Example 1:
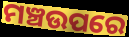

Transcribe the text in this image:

ମଞ୍ଚଉପରେ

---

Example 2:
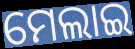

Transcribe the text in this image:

ମେଲାଇ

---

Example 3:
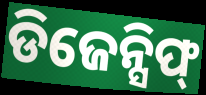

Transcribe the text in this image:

ଡିଜେନ୍ସିଫ୍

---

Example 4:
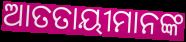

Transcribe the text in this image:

ଆତତାୟୀମାନଙ୍କ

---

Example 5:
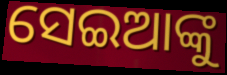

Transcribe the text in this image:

ସେଇଆଙ୍କୁ